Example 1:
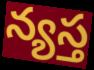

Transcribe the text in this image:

న్యస్త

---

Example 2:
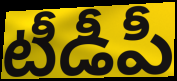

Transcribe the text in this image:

టీడీపీ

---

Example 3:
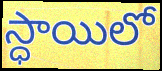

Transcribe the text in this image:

స్ధాయిలో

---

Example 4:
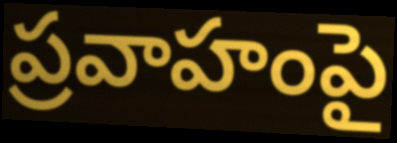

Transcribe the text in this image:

ప్రవాహంపై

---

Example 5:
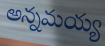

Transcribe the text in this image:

అన్నమయ్య